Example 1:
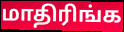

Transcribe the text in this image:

மாதிரிங்க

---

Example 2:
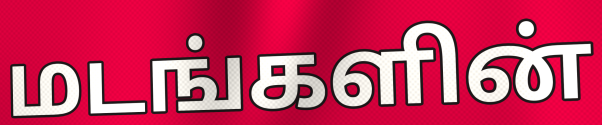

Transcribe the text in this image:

மடங்களின்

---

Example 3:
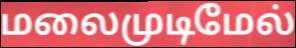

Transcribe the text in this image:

மலைமுடிமேல்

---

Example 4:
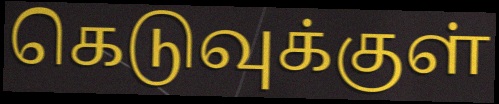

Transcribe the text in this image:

கெடுவுக்குள்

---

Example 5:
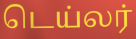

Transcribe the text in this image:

டெய்லர்